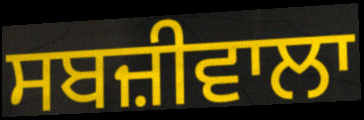
ਸਬਜ਼ੀਵਾਲਾ